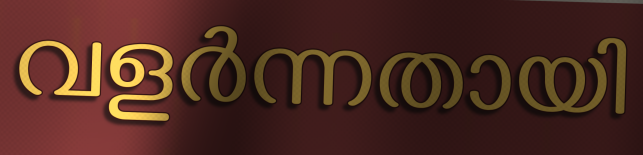
വളർന്നതായി